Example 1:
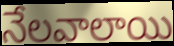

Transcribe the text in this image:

నేలవాలాయి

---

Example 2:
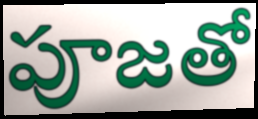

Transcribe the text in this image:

పూజతో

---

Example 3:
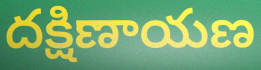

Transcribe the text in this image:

దక్షిణాయణ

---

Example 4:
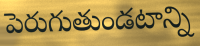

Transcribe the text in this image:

పెరుగుతుండటాన్ని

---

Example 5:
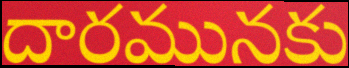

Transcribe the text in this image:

దారమునకు